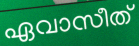
ഏവാസീത്